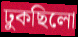
ঢুকছিলো